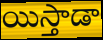
యిస్తాడా